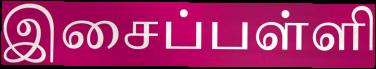
இசைப்பள்ளி